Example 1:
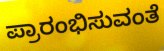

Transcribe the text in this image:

ಪ್ರಾರಂಭಿಸುವಂತೆ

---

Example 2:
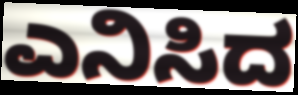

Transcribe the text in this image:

ಎನಿಸಿದ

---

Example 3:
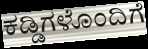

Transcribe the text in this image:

ಕಡ್ಡಿಗಳೊಂದಿಗೆ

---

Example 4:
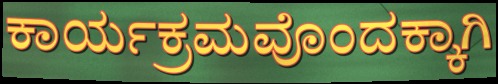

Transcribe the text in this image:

ಕಾರ್ಯಕ್ರಮವೊಂದಕ್ಕಾಗಿ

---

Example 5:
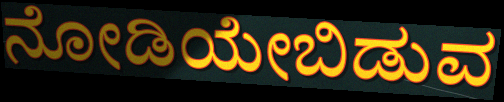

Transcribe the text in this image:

ನೋಡಿಯೇಬಿಡುವ